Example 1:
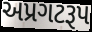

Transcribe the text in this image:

અપ્રગટરૂપ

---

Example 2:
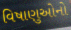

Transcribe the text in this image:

વિષાણુઓનો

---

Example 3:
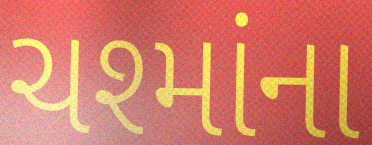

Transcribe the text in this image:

ચશ્માંના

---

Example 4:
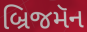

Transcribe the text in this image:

બ્રિજમૅન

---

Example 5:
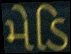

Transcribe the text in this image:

મેડિ